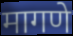
मागणे